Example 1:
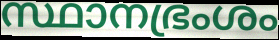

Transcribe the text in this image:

സ്ഥാനഭ്രംശം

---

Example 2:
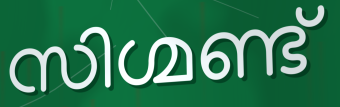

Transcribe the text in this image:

സിഗ്മണ്ട്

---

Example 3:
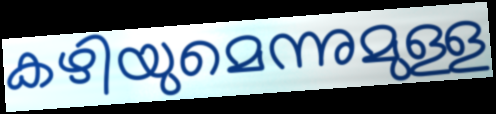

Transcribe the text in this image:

കഴിയുമെന്നുമുള്ള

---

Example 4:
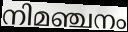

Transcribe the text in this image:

നിമഞ്ചനം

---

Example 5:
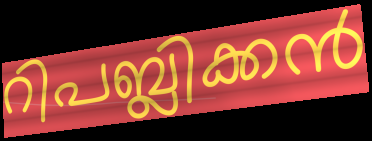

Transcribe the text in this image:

റിപബ്ലിക്കൻ